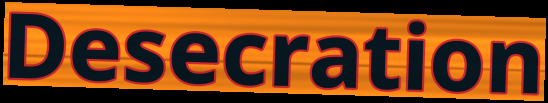
Desecration